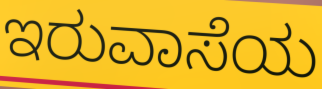
ಇರುವಾಸೆಯ